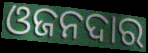
ଓଜନଦାର